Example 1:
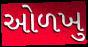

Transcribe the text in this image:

ઓળખુ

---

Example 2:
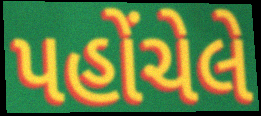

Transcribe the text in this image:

પહોંચેલે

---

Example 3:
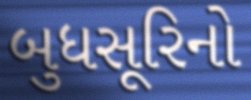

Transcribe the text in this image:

બુધસૂરિનો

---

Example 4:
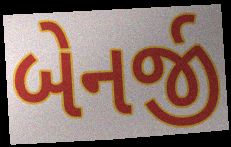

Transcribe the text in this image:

બેનર્જી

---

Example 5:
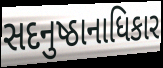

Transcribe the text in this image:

સદનુષ્ઠાનાધિકાર